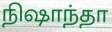
நிஷாந்தா